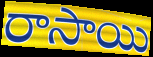
రాసాయి